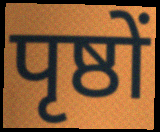
पृष्ठों